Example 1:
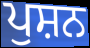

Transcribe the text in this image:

ਪੁਸ਼ਨ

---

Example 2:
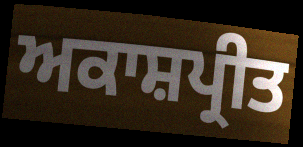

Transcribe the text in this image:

ਅਕਾਸ਼ਪ੍ਰੀਤ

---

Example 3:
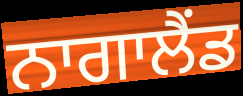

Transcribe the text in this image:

ਨਾਗਾਲੈਂਡ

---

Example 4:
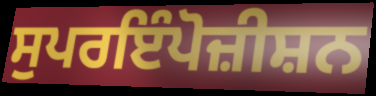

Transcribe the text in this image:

ਸੁਪਰਇੰਪੋਜ਼ੀਸ਼ਨ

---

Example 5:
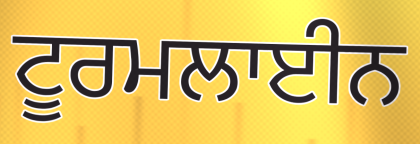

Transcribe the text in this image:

ਟੂਰਮਲਾਈਨ